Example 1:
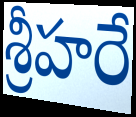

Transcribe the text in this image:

శ్రీహరే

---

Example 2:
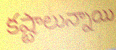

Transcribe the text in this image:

కష్టాలున్నాయి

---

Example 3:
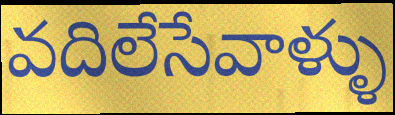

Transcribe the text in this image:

వదిలేసేవాళ్ళు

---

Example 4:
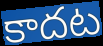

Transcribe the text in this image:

కాదట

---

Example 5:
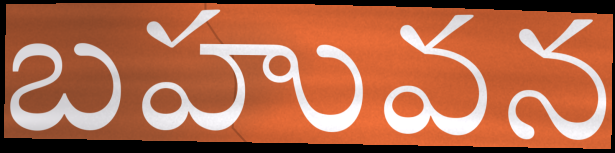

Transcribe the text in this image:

బహువన